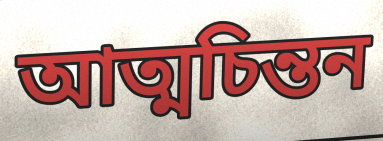
আত্মচিন্তন